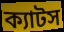
ক্যাটস